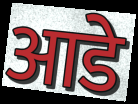
आडे